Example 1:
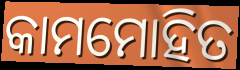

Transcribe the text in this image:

କାମମୋହିତ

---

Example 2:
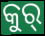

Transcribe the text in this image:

କୁର୍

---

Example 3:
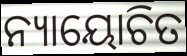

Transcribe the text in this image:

ନ୍ୟାୟୋଚିତ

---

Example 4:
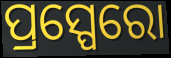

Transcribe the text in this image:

ପ୍ରସ୍ପେରୋ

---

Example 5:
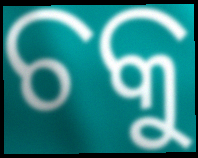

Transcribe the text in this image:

ଚକୁ